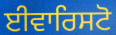
ਈਵਾਰਿਸਟੋ